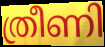
ത്രീണി